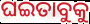
ଘଇତାବୁକୁ